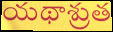
యథాశ్రుత